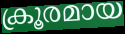
ക്രൂരമായ